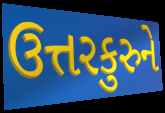
ઉત્તરકુરુને